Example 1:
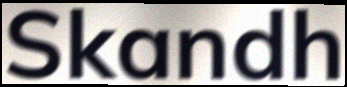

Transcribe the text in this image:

Skandh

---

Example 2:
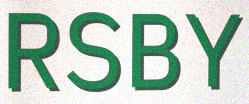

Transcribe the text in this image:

RSBY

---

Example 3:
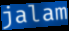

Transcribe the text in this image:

jalam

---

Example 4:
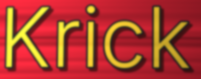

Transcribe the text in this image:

Krick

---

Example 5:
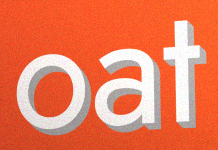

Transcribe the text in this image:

oat